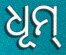
ଧୂମ୍